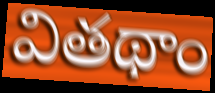
వితథాం